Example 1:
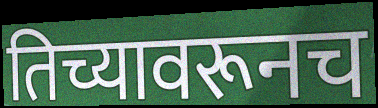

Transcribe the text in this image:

तिच्यावरूनच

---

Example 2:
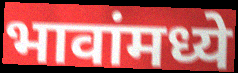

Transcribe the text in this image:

भावांमध्ये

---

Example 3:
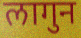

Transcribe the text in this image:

लागुन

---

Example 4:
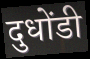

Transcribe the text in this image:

दुधोंडी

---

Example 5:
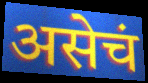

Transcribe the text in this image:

असेचं